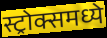
स्ट्रोक्समध्ये